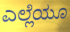
ಎಲ್ಲೆಯೂ